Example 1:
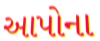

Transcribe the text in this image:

આપોના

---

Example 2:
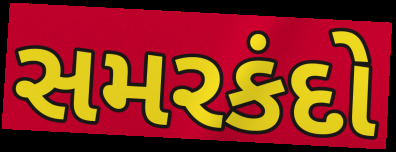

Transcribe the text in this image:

સમરકંદો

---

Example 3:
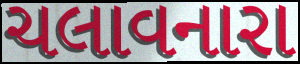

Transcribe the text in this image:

ચલાવનારા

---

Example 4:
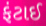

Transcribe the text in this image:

ફંટાઈ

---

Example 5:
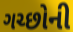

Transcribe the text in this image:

ગચ્છોની